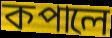
কপালে